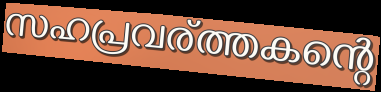
സഹപ്രവര്ത്തകന്റെ